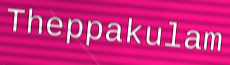
Theppakulam